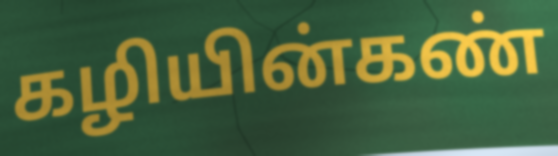
கழியின்கண்